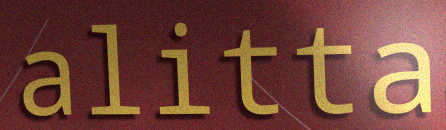
alitta